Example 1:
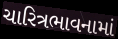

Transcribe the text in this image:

ચારિત્રભાવનામાં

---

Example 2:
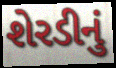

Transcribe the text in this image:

શેરડીનું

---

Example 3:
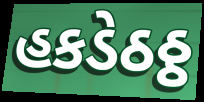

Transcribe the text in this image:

હકડેઠઠ્ઠ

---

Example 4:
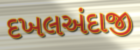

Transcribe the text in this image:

દખલઅંદાજી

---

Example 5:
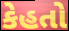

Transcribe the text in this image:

કેહતો